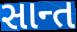
સાન્ત